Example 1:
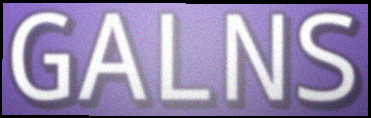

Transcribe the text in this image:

GALNS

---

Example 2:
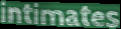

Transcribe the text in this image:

intimates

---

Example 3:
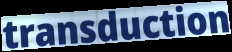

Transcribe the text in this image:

transduction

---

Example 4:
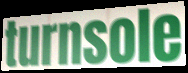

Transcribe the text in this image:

turnsole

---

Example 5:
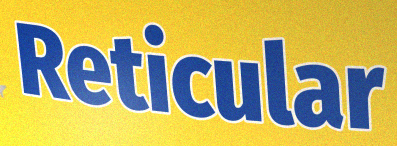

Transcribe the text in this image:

Reticular